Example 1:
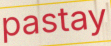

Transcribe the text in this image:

pastay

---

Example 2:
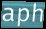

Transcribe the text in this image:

aph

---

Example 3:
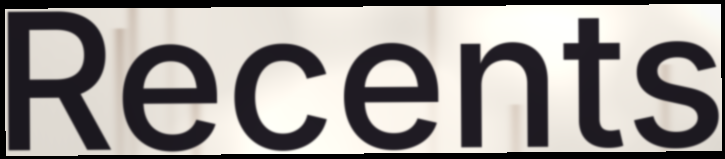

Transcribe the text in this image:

Recents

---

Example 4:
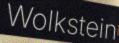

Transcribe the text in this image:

Wolkstein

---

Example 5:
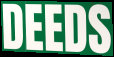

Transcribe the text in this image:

DEEDS